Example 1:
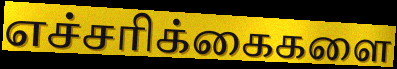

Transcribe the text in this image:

எச்சரிக்கைகளை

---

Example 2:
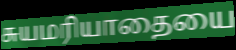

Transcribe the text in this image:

சுயமரியாதையை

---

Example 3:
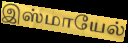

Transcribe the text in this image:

இஸ்மாயேல்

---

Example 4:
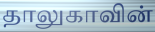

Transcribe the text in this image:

தாலுகாவின்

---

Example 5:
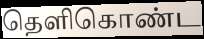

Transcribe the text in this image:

தெளிகொண்ட